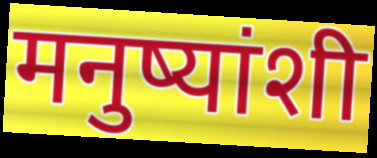
मनुष्यांशी